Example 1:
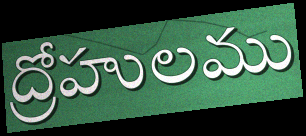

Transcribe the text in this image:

ద్రోహులము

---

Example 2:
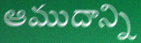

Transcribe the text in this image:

ఆముదాన్ని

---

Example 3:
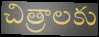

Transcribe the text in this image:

చిత్రాలకు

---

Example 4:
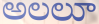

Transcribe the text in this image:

అలలూ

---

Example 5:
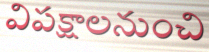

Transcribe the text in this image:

విపక్షాలనుంచి